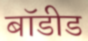
बॉडीड